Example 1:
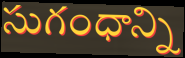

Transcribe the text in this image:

సుగంధాన్ని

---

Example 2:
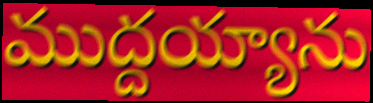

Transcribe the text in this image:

ముద్దయ్యాను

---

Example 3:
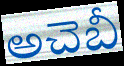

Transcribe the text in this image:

అచెబీ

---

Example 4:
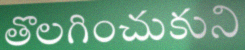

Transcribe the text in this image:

తొలగించుకుని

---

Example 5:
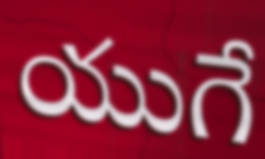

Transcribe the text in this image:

యుగే